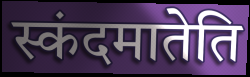
स्कंदमातेति